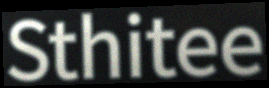
Sthitee